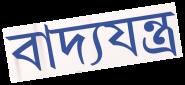
বাদ্যযন্ত্র